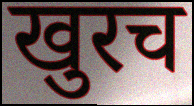
खुरच